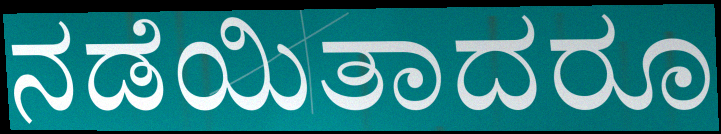
ನಡೆಯಿತಾದರೂ